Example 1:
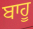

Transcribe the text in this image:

ਬਾਹੂ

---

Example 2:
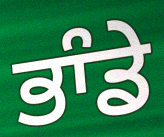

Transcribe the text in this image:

ਭਾੰਡੇ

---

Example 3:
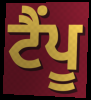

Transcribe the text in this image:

ਟੈਂਪੂ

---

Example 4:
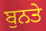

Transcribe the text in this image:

ਬੁਨਤੇ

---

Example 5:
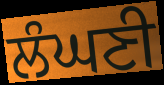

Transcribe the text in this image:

ਲੰਘਣੀ